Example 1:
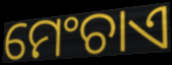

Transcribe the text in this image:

ମେଂଚାଏ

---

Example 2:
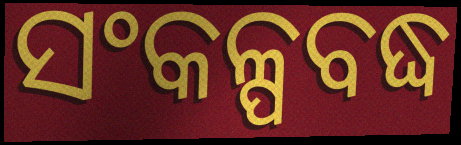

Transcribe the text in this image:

ସଂକଳ୍ପବଦ୍ଧ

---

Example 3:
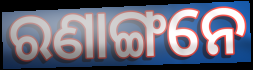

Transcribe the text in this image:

ରଣାଙ୍ଗନେ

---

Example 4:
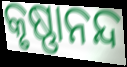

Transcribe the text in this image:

କୃଷ୍ଣାନନ୍ଦ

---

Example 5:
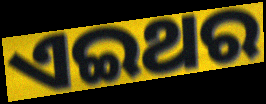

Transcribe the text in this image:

ଏଇଥର